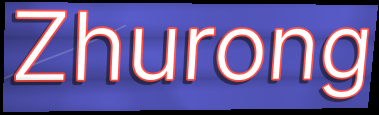
Zhurong